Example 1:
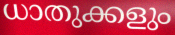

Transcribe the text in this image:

ധാതുക്കളും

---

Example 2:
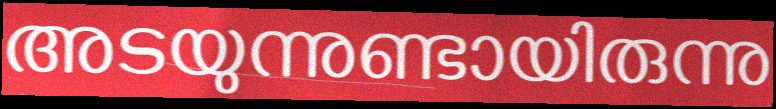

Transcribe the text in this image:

അടയുന്നുണ്ടായിരുന്നു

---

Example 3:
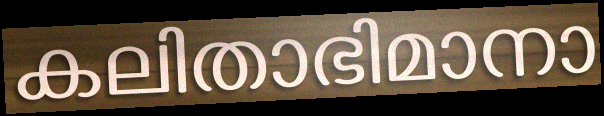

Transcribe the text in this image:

കലിതാഭിമാനാ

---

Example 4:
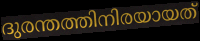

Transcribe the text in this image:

ദുരന്തത്തിനിരയായത്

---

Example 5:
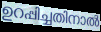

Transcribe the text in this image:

ഉറപ്പിച്ചതിനാൽ